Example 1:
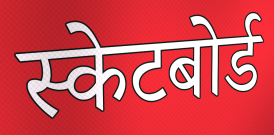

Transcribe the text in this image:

स्केटबोर्ड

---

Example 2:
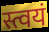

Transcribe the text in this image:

स्त्वयं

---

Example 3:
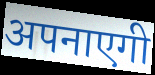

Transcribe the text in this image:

अपनाएगी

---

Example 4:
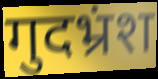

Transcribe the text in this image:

गुदभ्रंश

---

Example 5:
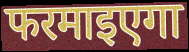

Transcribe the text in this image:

फरमाइएगा